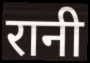
रानी